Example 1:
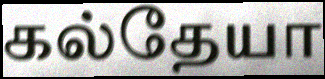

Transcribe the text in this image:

கல்தேயா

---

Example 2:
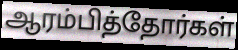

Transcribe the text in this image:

ஆரம்பித்தோர்கள்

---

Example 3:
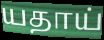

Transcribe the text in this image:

யதாய்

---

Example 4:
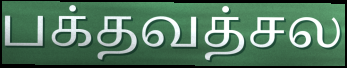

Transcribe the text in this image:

பக்தவத்சல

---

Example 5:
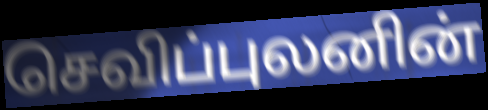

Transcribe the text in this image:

செவிப்புலனின்